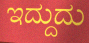
ಇದ್ದುದು